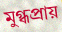
মুগ্ধপ্রায়